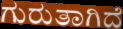
ಗುರುತಾಗಿದೆ